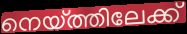
നെയ്ത്തിലേക്ക്